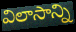
విలాసాన్ని